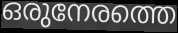
ഒരുനേരത്തെ